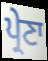
ਪ੍ਰੇਣਾ